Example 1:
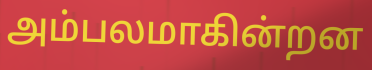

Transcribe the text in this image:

அம்பலமாகின்றன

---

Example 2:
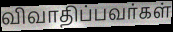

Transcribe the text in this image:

விவாதிப்பவர்கள்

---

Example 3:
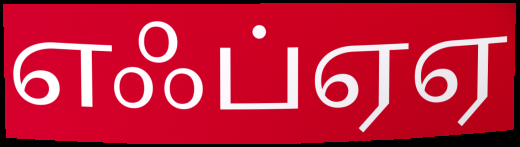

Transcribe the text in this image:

எஃப்ஏஏ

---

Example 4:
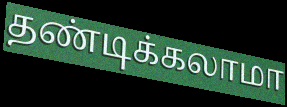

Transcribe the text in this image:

தண்டிக்கலாமா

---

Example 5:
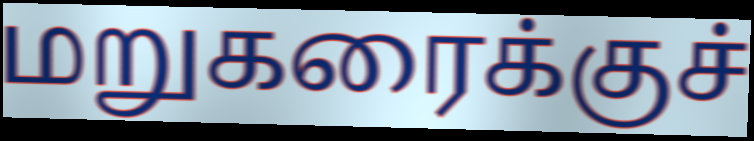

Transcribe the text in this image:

மறுகரைக்குச்